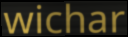
wichar